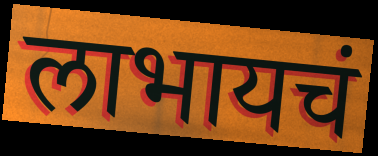
लाभायचं